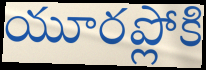
యూరప్లోకి